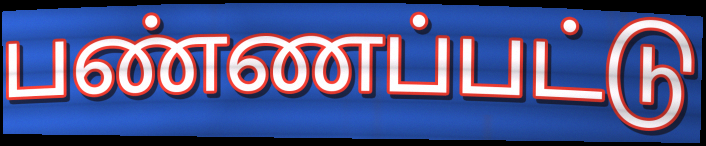
பண்ணப்பட்டு